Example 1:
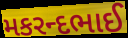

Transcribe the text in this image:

મકરન્દભાઈ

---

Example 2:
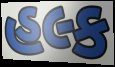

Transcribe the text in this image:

હલ્ક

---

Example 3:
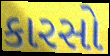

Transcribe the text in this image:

કારસો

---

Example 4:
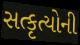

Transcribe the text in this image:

સત્કૃત્યોની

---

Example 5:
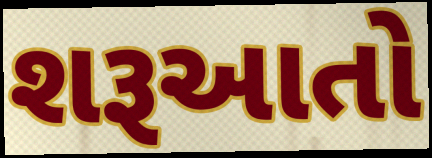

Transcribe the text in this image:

શરૂઆતો